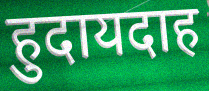
हुदायदाह